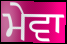
ਮੇਵਾ